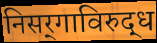
निसर्गाविरुद्ध